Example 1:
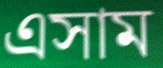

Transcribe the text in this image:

এসাম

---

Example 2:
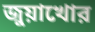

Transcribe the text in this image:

জুয়াখোর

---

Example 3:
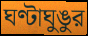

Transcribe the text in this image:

ঘণ্টাঘুঙুর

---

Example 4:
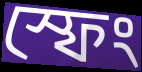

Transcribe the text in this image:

স্ফেং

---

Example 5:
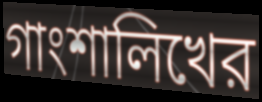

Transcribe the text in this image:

গাংশালিখের